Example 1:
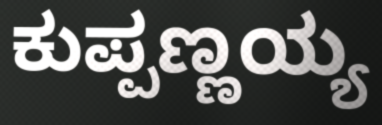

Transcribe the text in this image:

ಕುಪ್ಪಣ್ಣಯ್ಯ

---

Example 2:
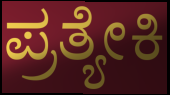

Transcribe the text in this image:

ಪ್ರತ್ಯೇಕಿ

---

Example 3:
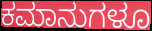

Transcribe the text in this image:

ಕಮಾನುಗಳೂ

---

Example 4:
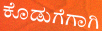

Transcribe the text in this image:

ಕೊಡುಗೆಗಾಗಿ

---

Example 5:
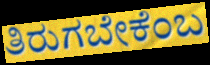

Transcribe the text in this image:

ತಿರುಗಬೇಕೆಂಬ